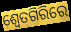
ଶ୍ୱେତଗିରିରେ